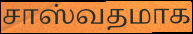
சாஸ்வதமாக